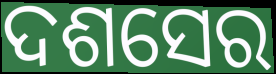
ଦଶସେର